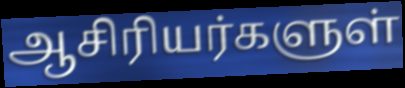
ஆசிரியர்களுள்